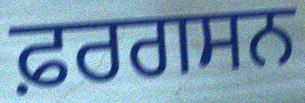
ਫ਼ਰਗਸਨ